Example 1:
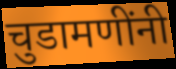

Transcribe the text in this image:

चुडामणींनी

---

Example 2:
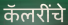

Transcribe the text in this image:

कॅलरींचे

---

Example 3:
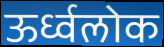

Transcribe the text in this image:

ऊर्ध्वलोक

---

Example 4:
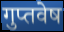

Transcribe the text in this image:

गुप्तवेष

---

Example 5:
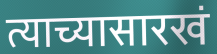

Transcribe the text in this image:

त्याच्यासारखं